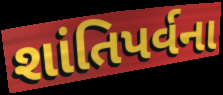
શાંતિપર્વના